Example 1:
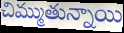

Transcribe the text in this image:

చిమ్ముతున్నాయి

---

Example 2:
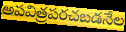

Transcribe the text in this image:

అపవిత్రపరచబడనేల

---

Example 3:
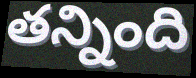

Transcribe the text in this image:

తన్నింది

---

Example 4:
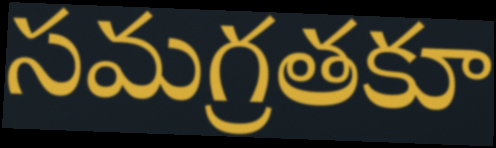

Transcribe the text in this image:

సమగ్రతకూ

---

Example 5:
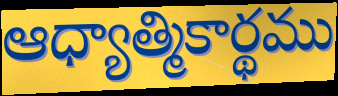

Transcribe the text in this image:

ఆధ్యాత్మికార్థము